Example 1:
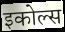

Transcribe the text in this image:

इकोल्स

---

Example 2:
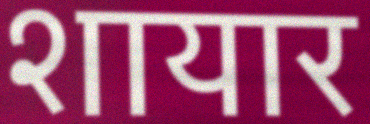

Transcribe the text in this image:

शायार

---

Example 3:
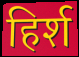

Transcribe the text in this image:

हिर्श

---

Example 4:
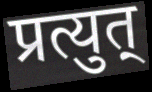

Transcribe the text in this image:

प्रत्युत्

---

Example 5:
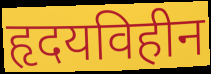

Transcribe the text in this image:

हृदयविहीन